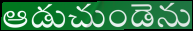
ఆడుచుండెను